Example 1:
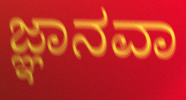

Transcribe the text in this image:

ಜ್ಞಾನವಾ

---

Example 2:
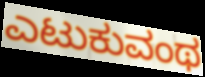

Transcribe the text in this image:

ಎಟುಕುವಂಥ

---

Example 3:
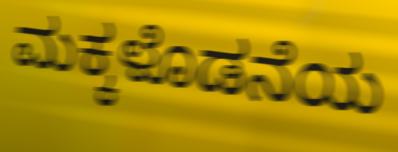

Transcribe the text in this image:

ಮಕ್ಕಳೊಡನೆಯ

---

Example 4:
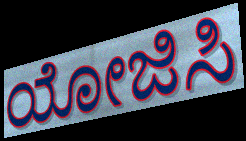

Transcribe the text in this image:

ಯೋಜಿಸಿ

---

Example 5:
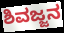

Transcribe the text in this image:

ಶಿವಜ್ಜನ